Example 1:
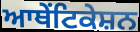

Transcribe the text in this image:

ਆਥੇਂਟਿਕੇਸ਼ਨ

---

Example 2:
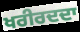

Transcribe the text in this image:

ਖਰੀਰਦਦਾ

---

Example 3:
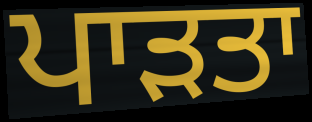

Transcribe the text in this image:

ਪਾੜਤਾ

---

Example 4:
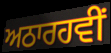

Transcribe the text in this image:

ਅਠਾਰਹਵੀਂ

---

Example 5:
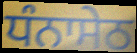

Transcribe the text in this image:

ਧੰਨਾਸੇਠ